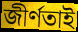
জীর্ণতাই